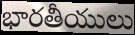
భారతీయులు